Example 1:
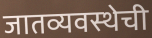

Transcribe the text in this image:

जातव्यवस्थेची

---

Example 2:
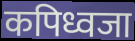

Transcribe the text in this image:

कपिध्वजा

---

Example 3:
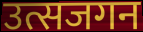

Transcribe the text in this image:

उत्सजगन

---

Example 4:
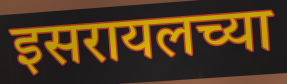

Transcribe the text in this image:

इसरायलच्या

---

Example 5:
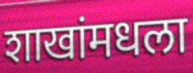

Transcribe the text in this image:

शाखांमधला